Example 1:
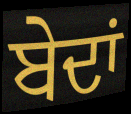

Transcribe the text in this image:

ਬੇਦਾਂ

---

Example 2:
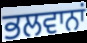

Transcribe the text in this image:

ਭਲਵਾਨਾਂ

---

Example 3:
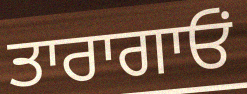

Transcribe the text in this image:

ਤਾਰਾਗਾਓਂ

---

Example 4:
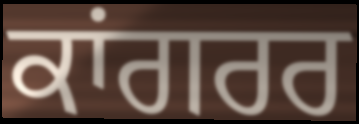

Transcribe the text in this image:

ਕਾਂਗਰਰ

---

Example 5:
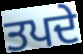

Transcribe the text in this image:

ਤਪਦੇ